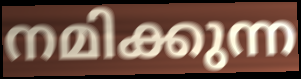
നമിക്കുന്ന